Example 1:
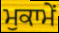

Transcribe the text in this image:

ਮੁਕਾਮੇਂ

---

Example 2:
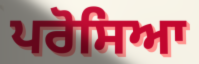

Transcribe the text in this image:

ਪਰੋਸਿਆ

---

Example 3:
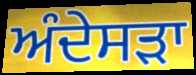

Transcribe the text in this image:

ਅੰਦੇਸੜਾ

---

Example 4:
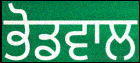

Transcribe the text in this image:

ਭੋਡਵਾਲ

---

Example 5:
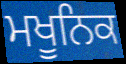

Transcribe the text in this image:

ਮਖੂਨਿਕ